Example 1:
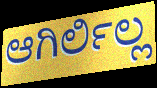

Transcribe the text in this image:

ಆಗಿರ್ಲಿಲ್ಲ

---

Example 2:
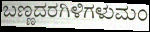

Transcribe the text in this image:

ಬಣ್ಣದರಗಿಳಿಗಳುಮಂ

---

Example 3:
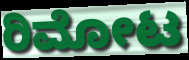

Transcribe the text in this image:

ರಿಮೋಟ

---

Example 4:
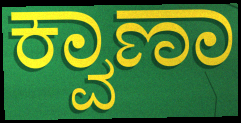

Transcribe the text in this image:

ಕ್ವಾಣಾ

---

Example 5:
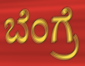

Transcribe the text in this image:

ಬೆಂಗ್ರೆ